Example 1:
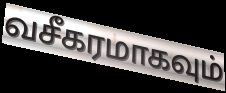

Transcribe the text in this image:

வசீகரமாகவும்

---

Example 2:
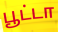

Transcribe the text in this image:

பூட்டா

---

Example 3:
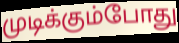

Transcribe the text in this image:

முடிக்கும்போது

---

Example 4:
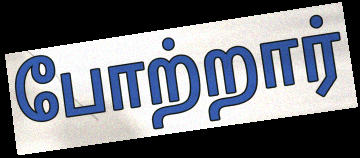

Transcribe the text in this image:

போற்றார்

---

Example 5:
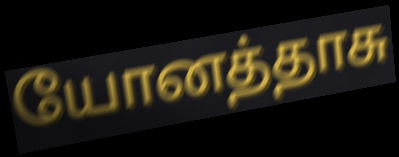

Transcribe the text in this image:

யோனத்தாசு